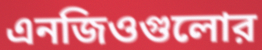
এনজিওগুলোর